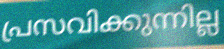
പ്രസവിക്കുന്നില്ല